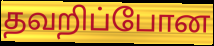
தவறிப்போன